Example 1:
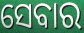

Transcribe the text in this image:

ସେବାର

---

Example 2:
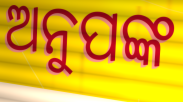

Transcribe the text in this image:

ଅନୁପଙ୍କ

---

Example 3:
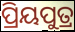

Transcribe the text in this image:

ପ୍ରିୟପୁତ୍ର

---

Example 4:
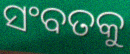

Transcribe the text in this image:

ସଂବତକୁ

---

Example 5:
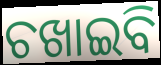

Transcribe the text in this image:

ଚଖାଇବି